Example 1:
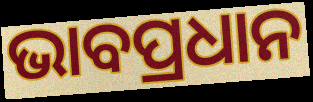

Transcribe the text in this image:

ଭାବପ୍ରଧାନ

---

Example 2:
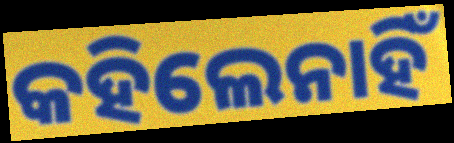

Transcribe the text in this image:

କହିଲେନାହିଁ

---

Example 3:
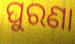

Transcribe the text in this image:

ପୁରଣା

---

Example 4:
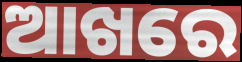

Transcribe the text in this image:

ଆଖରେ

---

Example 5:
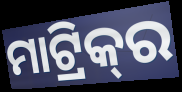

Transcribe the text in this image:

ମାଟ୍ରିକ୍‌ର